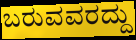
ಬರುವವರದ್ದು